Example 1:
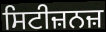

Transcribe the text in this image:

ਸਿਟੀਜ਼ਨਜ਼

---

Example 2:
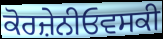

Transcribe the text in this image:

ਕੋਰਜ਼ੇਨੀਓਵਸਕੀ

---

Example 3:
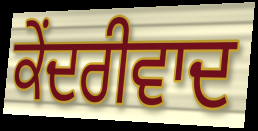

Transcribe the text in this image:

ਕੇਂਦਰੀਵਾਦ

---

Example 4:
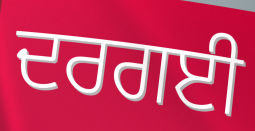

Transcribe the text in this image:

ਦਰਗਈ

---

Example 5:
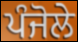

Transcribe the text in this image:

ਪੰਜੋਲੇ